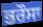
ਭਰੌਸਾ